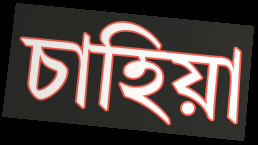
চাহিয়া